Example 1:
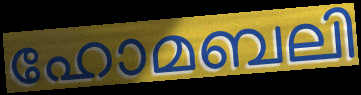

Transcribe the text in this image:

ഹോമബലി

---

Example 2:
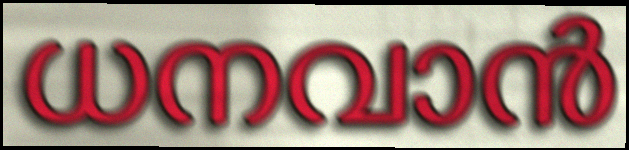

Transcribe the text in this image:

ധനവാൻ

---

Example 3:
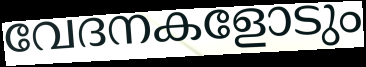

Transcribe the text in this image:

വേദനകളോടും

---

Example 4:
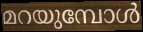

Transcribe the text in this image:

മറയുമ്പോൾ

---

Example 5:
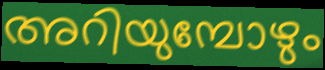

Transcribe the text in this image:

അറിയുമ്പോഴും